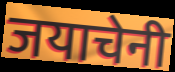
जयाचेनी